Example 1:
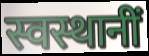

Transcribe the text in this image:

स्वस्थानीं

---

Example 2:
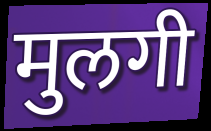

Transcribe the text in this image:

मुलगी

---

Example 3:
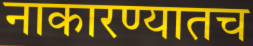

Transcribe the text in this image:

नाकारण्यातच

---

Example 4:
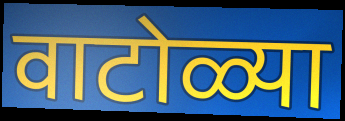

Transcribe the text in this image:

वाटोळ्या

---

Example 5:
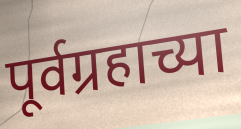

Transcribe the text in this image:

पूर्वग्रहाच्या